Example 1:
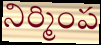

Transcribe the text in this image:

నిర్మింప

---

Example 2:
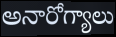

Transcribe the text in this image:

అనారోగ్యాలు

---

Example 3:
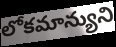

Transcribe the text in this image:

లోకమాన్యుని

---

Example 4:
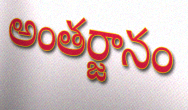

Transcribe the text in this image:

అంతర్జానం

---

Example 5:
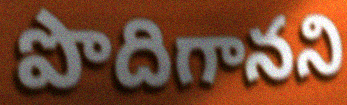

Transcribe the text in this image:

పొదిగానని